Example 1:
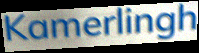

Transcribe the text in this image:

Kamerlingh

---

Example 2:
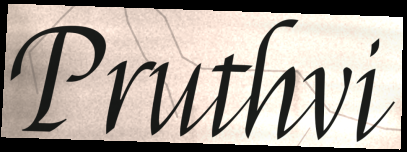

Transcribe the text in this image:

Pruthvi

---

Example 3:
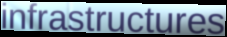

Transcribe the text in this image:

infrastructures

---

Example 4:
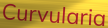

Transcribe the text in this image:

Curvularia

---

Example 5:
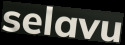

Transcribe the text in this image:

selavu